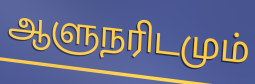
ஆளுநரிடமும்